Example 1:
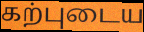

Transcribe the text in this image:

கற்புடைய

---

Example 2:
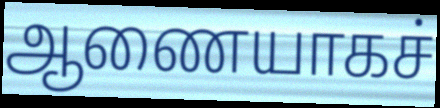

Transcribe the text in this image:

ஆணையாகச்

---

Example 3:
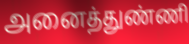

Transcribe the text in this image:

அனைத்துண்ணி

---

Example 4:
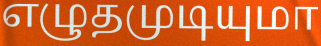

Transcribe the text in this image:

எழுதமுடியுமா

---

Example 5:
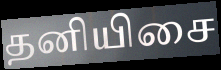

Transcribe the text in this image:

தனியிசை